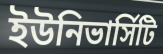
ইউনিভার্সিটি